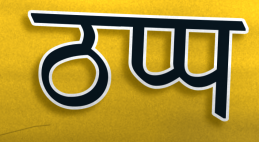
ठप्प